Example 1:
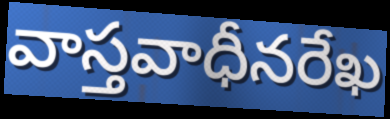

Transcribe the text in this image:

వాస్తవాధీనరేఖ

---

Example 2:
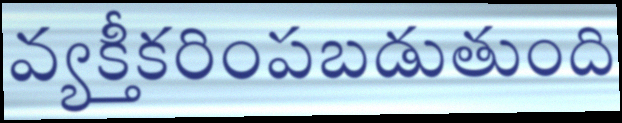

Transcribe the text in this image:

వ్యక్తీకరింపబడుతుంది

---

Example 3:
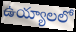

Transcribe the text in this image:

ఉయ్యాలలో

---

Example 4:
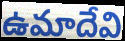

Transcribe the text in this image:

ఉమాదేవి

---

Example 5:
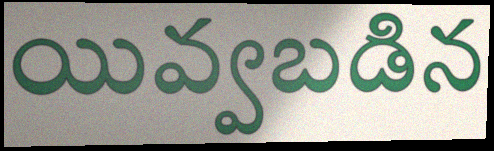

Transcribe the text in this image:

యివ్వబడిన